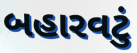
બહારવટું